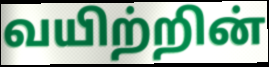
வயிற்றின்